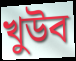
খুউব